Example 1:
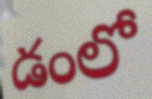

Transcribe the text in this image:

డంలో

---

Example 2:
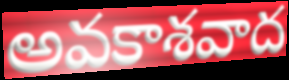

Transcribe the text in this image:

అవకాశవాద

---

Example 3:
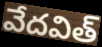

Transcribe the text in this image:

వేదవిత్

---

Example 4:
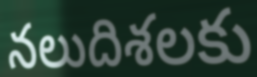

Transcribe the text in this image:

నలుదిశలకు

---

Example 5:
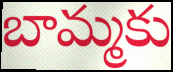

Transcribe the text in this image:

బామ్మకు